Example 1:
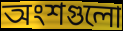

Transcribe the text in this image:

অংশগুলো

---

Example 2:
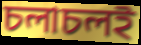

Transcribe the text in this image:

চলাচলই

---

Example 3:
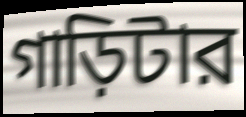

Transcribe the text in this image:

গাড়িটার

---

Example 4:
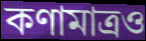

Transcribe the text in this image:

কণামাত্রও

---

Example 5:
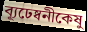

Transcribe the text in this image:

ব্যূঢেষ্বনীকেষু